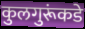
कुलगुरूंकडे